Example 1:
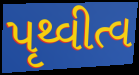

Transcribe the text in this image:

પૃથ્વીત્વ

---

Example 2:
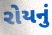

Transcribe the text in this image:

રોયનું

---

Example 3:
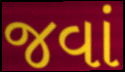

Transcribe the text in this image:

જવાં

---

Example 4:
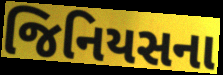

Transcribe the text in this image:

જિનિયસના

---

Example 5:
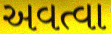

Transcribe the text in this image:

અવત્વા